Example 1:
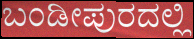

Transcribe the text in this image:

ಬಂಡೀಪುರದಲ್ಲಿ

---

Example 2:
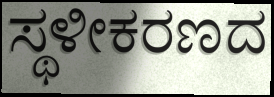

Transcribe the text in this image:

ಸ್ಥಳೀಕರಣದ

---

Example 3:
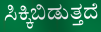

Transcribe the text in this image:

ಸಿಕ್ಕಿಬಿಡುತ್ತದೆ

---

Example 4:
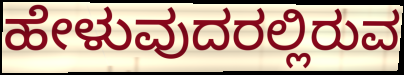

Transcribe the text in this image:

ಹೇಳುವುದರಲ್ಲಿರುವ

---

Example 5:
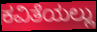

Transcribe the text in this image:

ಕವಿತೆಯಲ್ಲು